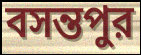
বসন্তপুর